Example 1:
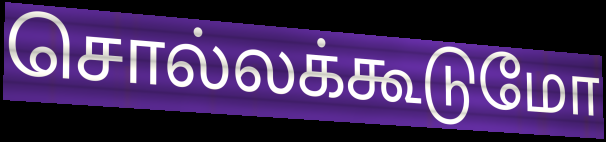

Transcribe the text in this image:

சொல்லக்கூடுமோ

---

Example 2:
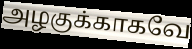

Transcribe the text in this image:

அழகுக்காகவே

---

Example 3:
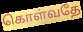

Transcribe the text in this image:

கொள்வதே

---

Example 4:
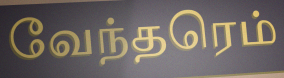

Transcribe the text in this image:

வேந்தரெம்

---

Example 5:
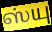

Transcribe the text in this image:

ஸ்யு